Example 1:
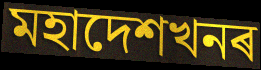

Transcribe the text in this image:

মহাদেশখনৰ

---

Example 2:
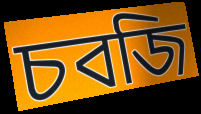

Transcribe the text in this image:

চবজি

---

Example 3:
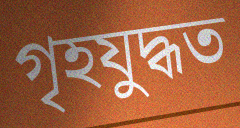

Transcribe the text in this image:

গৃহযুদ্ধত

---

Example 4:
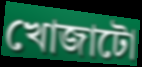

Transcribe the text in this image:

খোজাটো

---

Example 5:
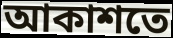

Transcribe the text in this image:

আকাশতে